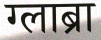
ग्लाब्रा